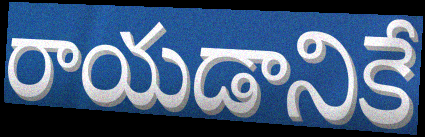
రాయడానికే